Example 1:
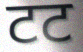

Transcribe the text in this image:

टट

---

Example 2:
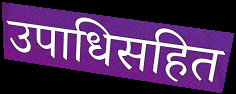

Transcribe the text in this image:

उपाधिसहित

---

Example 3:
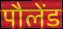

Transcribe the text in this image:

पौलेंड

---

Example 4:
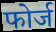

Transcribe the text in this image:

फोर्ज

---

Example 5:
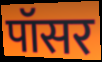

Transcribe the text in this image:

पॉसर